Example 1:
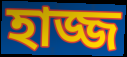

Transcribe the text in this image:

হাজ্জ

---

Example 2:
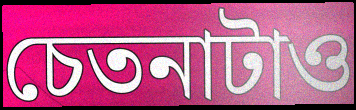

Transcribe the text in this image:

চেতনাটাও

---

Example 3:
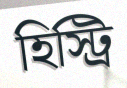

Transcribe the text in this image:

হিস্ট্রি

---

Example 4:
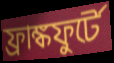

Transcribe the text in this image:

ফ্রাঙ্কফুর্টে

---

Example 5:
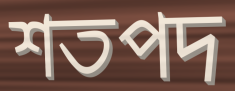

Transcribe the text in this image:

শতপদ